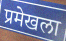
प्रमेखला